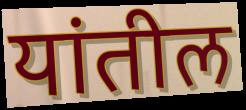
यांतील